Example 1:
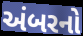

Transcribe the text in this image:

અંબરનો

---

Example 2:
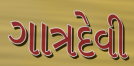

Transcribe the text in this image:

ગાત્રદેવી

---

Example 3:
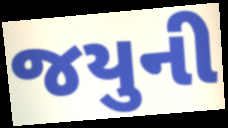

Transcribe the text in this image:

જયુની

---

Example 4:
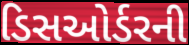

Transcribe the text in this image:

ડિસઓર્ડરની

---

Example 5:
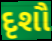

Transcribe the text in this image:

દૃશૌ